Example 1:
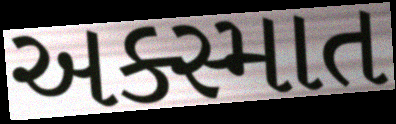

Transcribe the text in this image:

અક્સ્માત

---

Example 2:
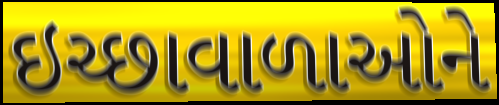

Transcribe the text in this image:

ઇચ્છાવાળાઓને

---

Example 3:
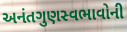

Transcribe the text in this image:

અનંતગુણસ્વભાવોની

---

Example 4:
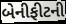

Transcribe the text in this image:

બેનીફીટની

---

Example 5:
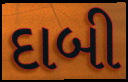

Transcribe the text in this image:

દાબી